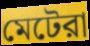
মেটেরা